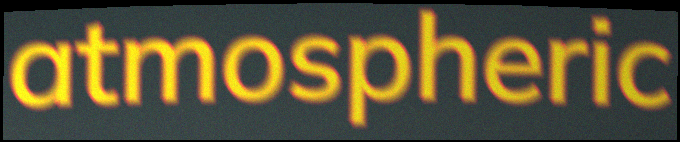
atmospheric